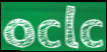
oclc